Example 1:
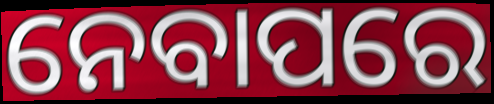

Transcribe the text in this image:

ନେବାପରେ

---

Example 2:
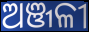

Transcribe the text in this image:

ଅଞ୍ଜଳୀ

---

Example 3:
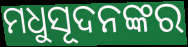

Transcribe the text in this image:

ମଧୁସୂଦନଙ୍କର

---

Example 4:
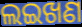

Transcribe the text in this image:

ଲଇଖଣ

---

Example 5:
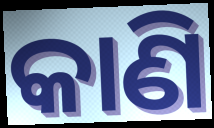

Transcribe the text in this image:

କାଣି